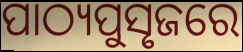
ପାଠ୍ୟପୁସୃଜରେ